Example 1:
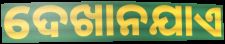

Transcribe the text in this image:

ଦେଖାନଯାଏ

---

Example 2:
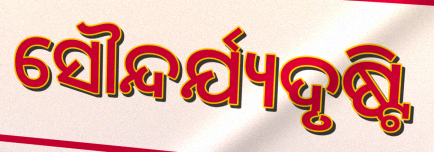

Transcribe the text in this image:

ସୌନ୍ଦର୍ଯ୍ୟଦୃଷ୍ଟି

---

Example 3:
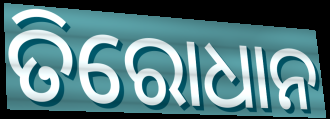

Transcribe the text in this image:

ତିରୋଧାନ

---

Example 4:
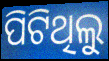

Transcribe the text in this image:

ପିଟିଥିଲୁ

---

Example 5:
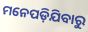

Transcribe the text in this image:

ମନେପଡ଼ିଯିବାରୁ